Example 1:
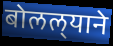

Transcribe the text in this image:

बोलल्याने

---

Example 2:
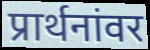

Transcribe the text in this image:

प्रार्थनांवर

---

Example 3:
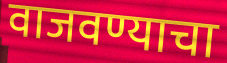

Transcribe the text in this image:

वाजवण्याचा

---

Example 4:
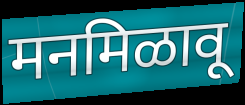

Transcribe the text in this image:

मनमिळावू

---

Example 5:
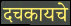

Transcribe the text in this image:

दचकायचे